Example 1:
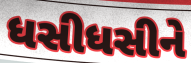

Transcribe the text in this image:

ધસીધસીને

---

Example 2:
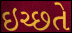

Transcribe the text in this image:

ઇચ્છતે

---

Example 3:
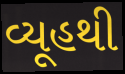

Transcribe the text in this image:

વ્યૂહથી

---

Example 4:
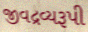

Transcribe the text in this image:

જીવદ્રવ્યરૂપી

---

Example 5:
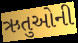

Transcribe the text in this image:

ઋતુઓની